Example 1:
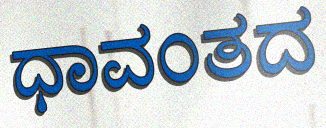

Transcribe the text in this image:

ಧಾವಂತದ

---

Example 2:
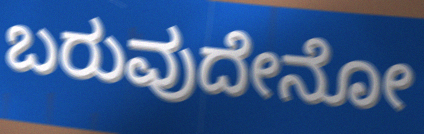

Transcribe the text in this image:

ಬರುವುದೇನೋ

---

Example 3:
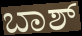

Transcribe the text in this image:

ಬಾಶ್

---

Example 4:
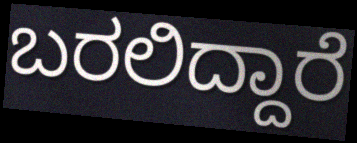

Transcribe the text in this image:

ಬರಲಿದ್ದಾರೆ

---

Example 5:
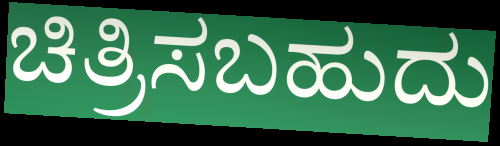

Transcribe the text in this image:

ಚಿತ್ರಿಸಬಹುದು